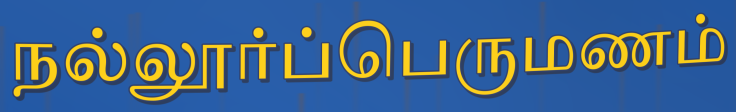
நல்லூர்ப்பெருமணம்